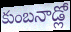
కుంబనాడ్లో